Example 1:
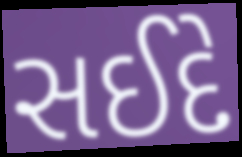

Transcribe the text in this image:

સઈદે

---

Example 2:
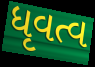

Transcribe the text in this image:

ધૃવત્વ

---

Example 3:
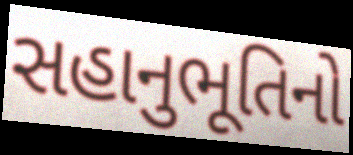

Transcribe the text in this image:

સહાનુભૂતિનો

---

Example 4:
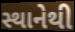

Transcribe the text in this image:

સ્થાનેથી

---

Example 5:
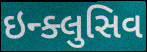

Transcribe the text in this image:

ઇન્ક્લુસિવ